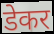
डेकर